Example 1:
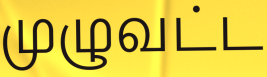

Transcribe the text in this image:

முழுவட்ட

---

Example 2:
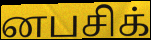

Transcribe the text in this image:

னபசிக்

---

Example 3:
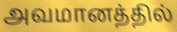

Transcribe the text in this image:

அவமானத்தில்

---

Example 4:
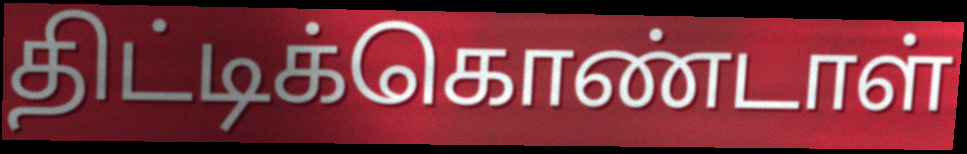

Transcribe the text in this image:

திட்டிக்கொண்டாள்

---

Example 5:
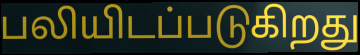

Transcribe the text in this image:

பலியிடப்படுகிறது